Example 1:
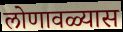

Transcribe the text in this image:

लोणावळ्यास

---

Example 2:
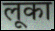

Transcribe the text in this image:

लूका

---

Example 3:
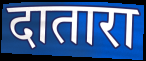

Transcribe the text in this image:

दातारा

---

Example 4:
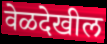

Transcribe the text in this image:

वेळदेखील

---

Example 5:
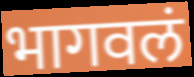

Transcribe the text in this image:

भागवलं